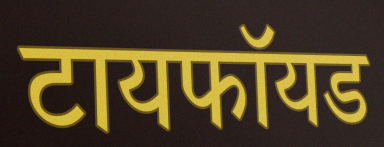
टायफॉयड